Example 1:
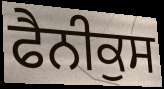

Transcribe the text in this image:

ਫੈਨੀਕੁਸ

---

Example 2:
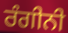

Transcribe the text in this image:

ਰੰਗੀਨੀ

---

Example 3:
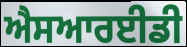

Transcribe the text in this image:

ਐਸਆਰਈਡੀ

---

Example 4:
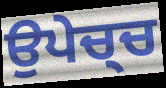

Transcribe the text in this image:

ਉਪੇਚ੍ਚ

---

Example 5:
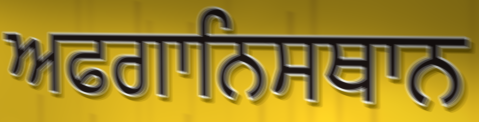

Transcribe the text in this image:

ਅਫਗਾਨਿਸਥਾਨ